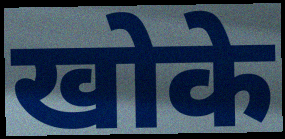
खोके